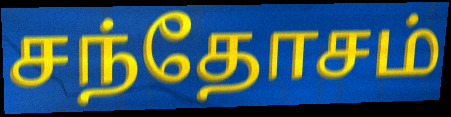
சந்தோசம்